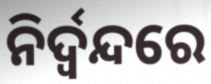
ନିର୍ଦ୍ୱନ୍ଦରେ